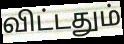
விட்டதும்